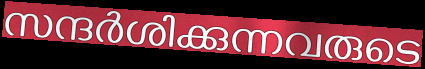
സന്ദർശിക്കുന്നവരുടെ